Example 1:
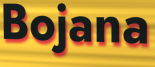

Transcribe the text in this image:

Bojana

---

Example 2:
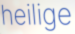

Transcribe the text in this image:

heilige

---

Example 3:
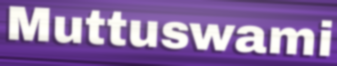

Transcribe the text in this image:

Muttuswami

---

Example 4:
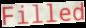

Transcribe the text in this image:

Filled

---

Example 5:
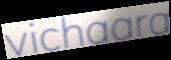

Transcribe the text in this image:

vichaara